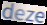
deze